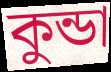
কুন্ডা